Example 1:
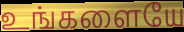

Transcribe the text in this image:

உங்களையே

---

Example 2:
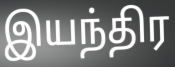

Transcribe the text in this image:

இயந்திர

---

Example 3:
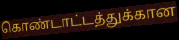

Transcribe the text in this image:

கொண்டாட்டத்துக்கான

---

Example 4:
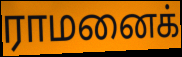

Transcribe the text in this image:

ராமனைக்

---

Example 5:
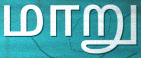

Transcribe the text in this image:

மாறு